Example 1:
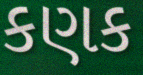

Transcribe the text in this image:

કણક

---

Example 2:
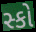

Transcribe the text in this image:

સ્કો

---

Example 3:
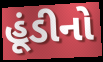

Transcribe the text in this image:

હૂંડીનો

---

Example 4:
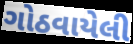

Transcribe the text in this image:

ગોઠવાયેલી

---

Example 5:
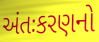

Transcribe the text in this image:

અંતઃકરણનો